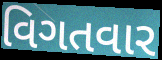
વિગતવાર